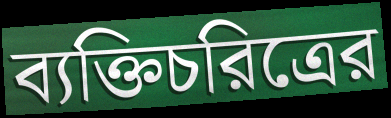
ব্যক্তিচরিত্রের